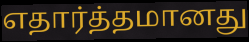
எதார்த்தமானது